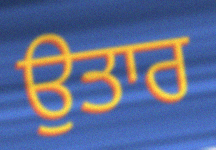
ਉਤਾਰ